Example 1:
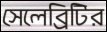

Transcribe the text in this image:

সেলেব্রিটির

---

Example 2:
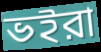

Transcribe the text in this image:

ভইরা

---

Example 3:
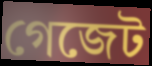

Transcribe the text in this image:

গেজেট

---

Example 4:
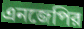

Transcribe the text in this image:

এনজেপির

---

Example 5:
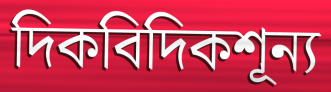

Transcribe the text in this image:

দিকবিদিকশূন্য